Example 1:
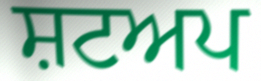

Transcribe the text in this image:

ਸ਼ਟਅਪ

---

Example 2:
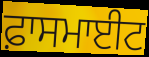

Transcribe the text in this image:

ਫ਼ਾਸਮਾਈਟ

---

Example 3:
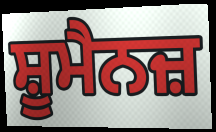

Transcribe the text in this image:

ਸ਼ੂਮੈਨਜ਼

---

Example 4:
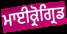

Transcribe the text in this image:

ਮਾਈਕ੍ਰੋਗ੍ਰਿਡ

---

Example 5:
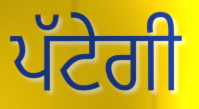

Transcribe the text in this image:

ਪੱਟੇਗੀ